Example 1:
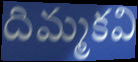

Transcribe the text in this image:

దిమ్మకవి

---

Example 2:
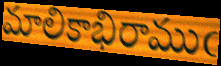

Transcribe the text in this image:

మాలికాభిరాముఁ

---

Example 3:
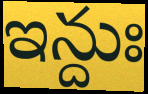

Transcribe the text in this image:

ఇన్దుః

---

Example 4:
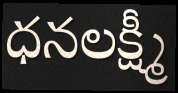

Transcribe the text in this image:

ధనలక్ష్మీ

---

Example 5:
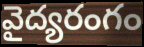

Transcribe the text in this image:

వైద్యరంగం